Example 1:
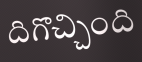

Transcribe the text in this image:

దిగొచ్చింది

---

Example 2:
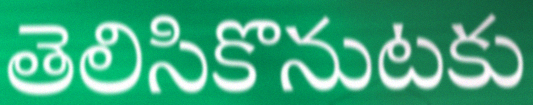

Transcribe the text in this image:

తెలిసికొనుటకు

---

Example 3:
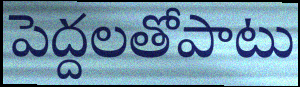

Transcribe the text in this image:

పెద్దలతోపాటు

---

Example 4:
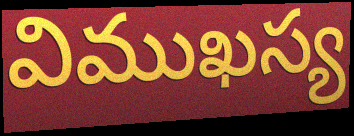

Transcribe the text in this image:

విముఖస్య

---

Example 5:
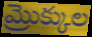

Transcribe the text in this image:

మ్రొక్కుల